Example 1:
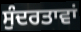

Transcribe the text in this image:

ਸੁੰਦਰਤਾਵਾਂ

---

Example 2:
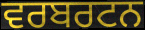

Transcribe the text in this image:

ਵਰਬਰਟਨ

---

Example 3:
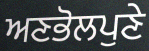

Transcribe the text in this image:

ਅਣਭੋਲਪੁਣੇ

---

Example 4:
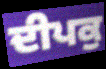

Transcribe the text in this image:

ਦੀਪਕੁ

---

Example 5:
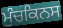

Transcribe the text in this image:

ਮੁੰਚਕਿਨਸ